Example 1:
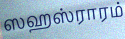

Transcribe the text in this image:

ஸஹஸ்ராரம்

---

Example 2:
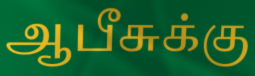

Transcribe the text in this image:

ஆபீசுக்கு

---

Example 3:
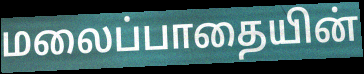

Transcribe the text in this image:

மலைப்பாதையின்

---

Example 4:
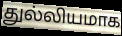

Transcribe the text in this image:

துல்லியமாக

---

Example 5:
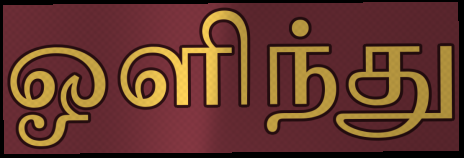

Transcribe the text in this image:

ஓளிந்து